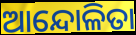
ଆନ୍ଦୋଳିତା